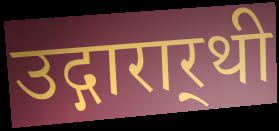
उद्गारार्थी